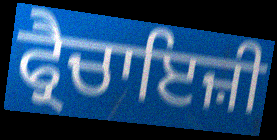
ਫ੍ਰੈਚਾਇਜ਼ੀ